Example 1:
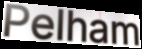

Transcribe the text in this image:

Pelham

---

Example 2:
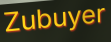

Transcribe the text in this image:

Zubuyer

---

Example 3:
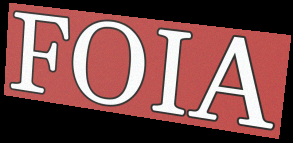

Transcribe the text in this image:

FOIA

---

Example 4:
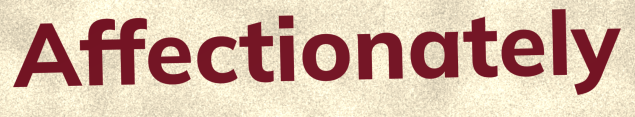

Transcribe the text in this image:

Affectionately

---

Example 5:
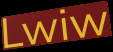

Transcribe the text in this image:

Lwiw